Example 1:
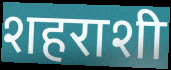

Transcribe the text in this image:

शहराशी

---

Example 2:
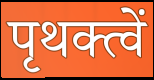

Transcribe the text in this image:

पृथक्त्वें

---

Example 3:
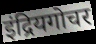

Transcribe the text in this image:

इंद्रियगोचर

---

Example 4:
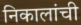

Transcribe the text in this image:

निकालांची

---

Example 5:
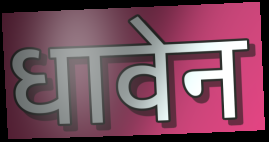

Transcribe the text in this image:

धावेन